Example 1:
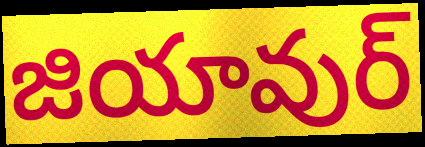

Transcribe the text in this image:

జియావుర్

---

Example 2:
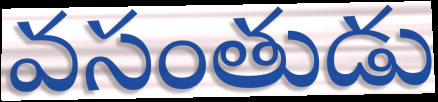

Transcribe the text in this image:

వసంతుడు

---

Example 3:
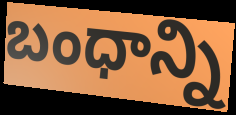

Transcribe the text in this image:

బంధాన్ని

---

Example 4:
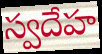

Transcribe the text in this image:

స్వదేహ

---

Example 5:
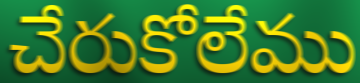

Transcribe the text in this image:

చేరుకోలేము